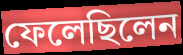
ফেলেছিলেন